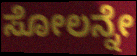
ಸೋಲನ್ನೇ